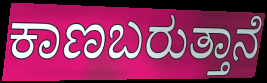
ಕಾಣಬರುತ್ತಾನೆ